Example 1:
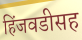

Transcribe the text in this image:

हिंजवडीसह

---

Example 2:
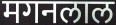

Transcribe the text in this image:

मगनलाल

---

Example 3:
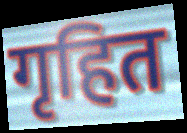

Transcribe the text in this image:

गृहित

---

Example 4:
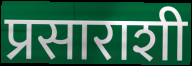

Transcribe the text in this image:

प्रसाराशी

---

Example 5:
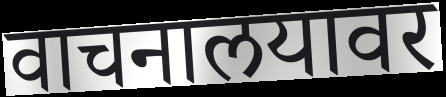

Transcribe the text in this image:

वाचनालयावर